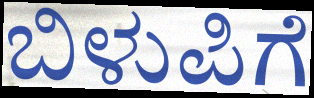
ಬಿಳುಪಿಗೆ